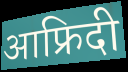
आफ्रिदी